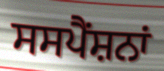
ਸਸਪੈਂਸ਼ਨਾਂ